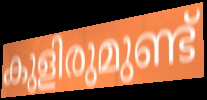
കുളിരുമുണ്ട്